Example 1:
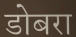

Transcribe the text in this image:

डोबरा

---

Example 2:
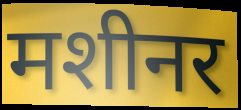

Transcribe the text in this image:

मशीनर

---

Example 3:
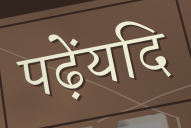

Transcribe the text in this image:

पढ़ेंयदि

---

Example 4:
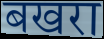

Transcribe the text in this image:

बखरा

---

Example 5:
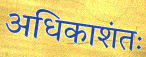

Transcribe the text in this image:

अधिकाशंतः